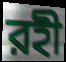
রহী